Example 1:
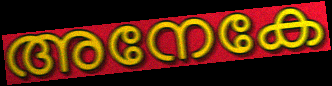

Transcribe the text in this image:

അനേകേ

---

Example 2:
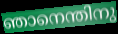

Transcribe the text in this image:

ഞാനെന്തിനു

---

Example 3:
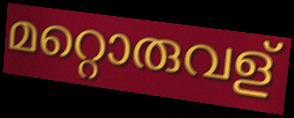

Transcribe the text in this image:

മറ്റൊരുവള്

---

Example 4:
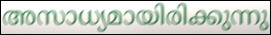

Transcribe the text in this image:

അസാധ്യമായിരിക്കുന്നു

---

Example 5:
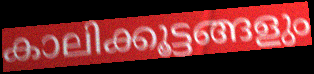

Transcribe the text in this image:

കാലിക്കൂട്ടങ്ങളും